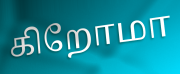
கிறோமா